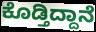
ಕೊಡ್ತಿದ್ದಾನೆ